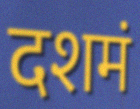
दशमं